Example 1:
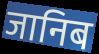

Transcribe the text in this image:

जानिब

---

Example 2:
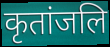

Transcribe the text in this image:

कृतांजलि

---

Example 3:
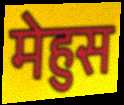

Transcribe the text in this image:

मेहुस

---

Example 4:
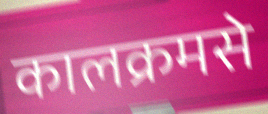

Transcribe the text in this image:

कालक्रमसे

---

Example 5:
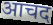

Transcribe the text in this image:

आचद